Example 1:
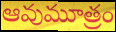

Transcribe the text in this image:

ఆవుమూత్రం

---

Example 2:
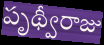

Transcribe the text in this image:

పృథ్వీరాజు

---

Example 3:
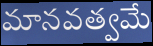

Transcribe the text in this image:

మానవత్వమే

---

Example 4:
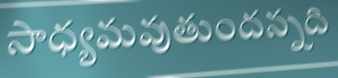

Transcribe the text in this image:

సాధ్యమవుతుందన్నది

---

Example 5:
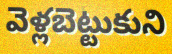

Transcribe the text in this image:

వెళ్లబెట్టుకుని